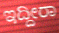
ಇದ್ದೀರಾ